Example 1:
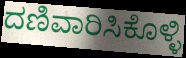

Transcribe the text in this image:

ದಣಿವಾರಿಸಿಕೊಳ್ಳಿ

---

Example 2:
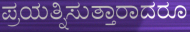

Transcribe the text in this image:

ಪ್ರಯತ್ನಿಸುತ್ತಾರಾದರೂ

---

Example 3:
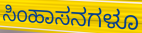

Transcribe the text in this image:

ಸಿಂಹಾಸನಗಳೂ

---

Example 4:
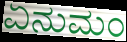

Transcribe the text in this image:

ಏನುಮಂ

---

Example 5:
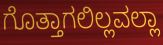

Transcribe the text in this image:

ಗೊತ್ತಾಗಲಿಲ್ಲವಲ್ಲಾ